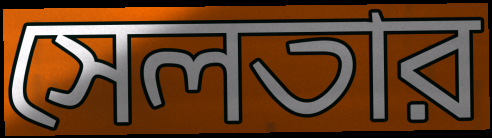
সেলতার